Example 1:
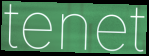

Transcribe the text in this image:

tenet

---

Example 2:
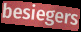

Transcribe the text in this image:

besiegers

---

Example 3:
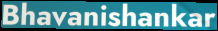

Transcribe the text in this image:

Bhavanishankar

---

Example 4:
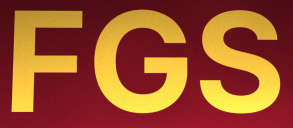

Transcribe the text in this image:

FGS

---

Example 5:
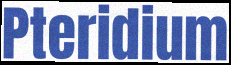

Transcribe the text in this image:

Pteridium